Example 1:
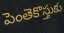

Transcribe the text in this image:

పెంతెకొస్తుకు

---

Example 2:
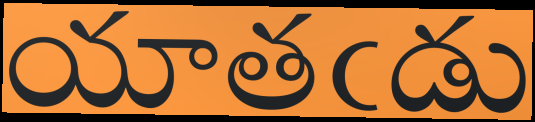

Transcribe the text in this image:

యాతఁడు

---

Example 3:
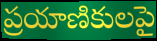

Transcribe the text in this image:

ప్రయాణికులపై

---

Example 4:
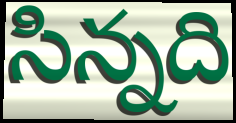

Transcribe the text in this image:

సిన్నది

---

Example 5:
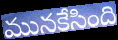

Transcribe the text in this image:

మునకేసింది